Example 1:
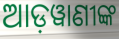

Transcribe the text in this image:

ଆଡ଼ୱାଣୀଙ୍କ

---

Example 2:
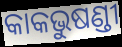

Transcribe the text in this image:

କାକଭୁଷଣ୍ଡୀ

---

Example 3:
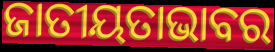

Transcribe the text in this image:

ଜାତୀୟତାଭାବର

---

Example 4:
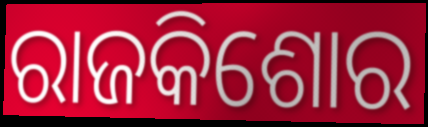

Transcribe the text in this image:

ରାଜକିଶୋର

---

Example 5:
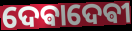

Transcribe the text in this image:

ଦେଵାଦେଵୀ